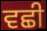
ਵਛੀ